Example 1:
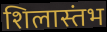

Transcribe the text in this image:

शिलास्तंभ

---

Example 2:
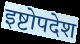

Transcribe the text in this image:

इष्टोपदेश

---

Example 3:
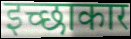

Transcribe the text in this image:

इच्छाकार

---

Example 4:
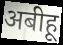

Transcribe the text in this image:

अबीहू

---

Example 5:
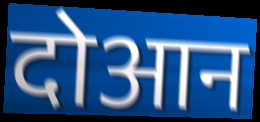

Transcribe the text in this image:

दोआन